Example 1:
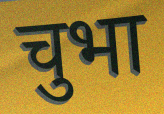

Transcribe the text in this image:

चुभा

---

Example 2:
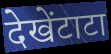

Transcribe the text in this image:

देखेंटाटा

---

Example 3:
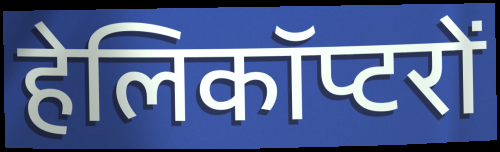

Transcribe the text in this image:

हेलिकॉप्टरों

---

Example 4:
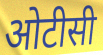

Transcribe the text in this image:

ओटीसी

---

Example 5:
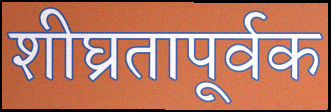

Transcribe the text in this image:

शीघ्रतापूर्वक